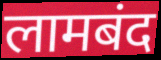
लामबंद